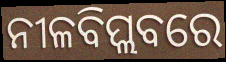
ନୀଳବିପ୍ଲବରେ